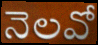
నెలవో